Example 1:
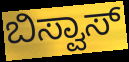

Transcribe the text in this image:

ಬಿಸ್ವಾಸ್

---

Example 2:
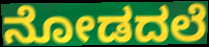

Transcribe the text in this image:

ನೋಡದಲೆ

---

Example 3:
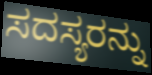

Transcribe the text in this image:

ಸದಸ್ಯರನ್ನು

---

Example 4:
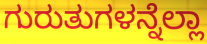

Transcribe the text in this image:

ಗುರುತುಗಳನ್ನೆಲ್ಲಾ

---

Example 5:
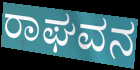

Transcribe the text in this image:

ರಾಘವನ